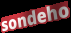
sondeho